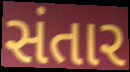
સંતાર